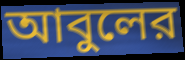
আবুলের